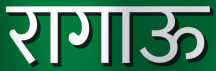
रागाऊ